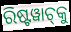
ରିଷ୍ଟୱାଚ୍‌କୁ